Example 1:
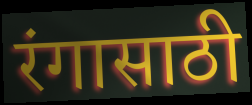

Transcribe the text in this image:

रंगासाठी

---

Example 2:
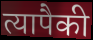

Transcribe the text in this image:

त्यापैकी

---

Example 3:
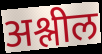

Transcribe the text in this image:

अश्लील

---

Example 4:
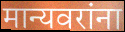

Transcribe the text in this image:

मान्यवरांना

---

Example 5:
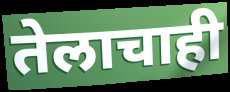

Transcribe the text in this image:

तेलाचाही